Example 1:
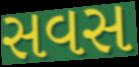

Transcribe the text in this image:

સવસ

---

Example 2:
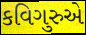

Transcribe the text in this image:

કવિગુરુએ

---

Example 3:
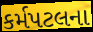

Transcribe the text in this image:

કર્મપટલના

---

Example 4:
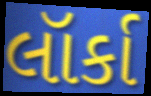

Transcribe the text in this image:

લૉર્કા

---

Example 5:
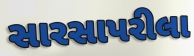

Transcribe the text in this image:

સારસાપરીલા